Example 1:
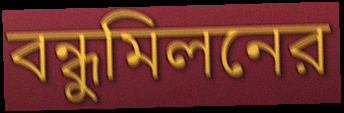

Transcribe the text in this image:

বন্ধুমিলনের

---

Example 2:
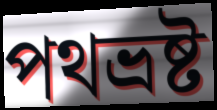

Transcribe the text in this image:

পথভ্রষ্ট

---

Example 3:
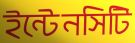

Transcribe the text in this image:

ইন্টেনসিটি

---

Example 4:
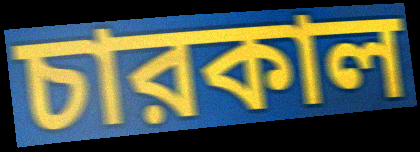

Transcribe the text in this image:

চারকাল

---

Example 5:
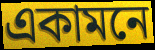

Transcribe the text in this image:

একামনে